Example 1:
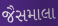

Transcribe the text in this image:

જૈસમાલા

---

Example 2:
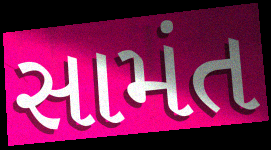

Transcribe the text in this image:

સામંત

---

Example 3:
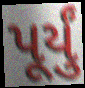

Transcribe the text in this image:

પૂર્યું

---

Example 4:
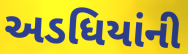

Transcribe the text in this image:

અડધિયાંની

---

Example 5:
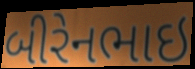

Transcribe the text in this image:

બીરેનભાઇ